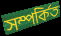
সম্পর্কিত